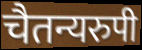
चैतन्यरुपी